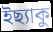
ইছ্যাকু